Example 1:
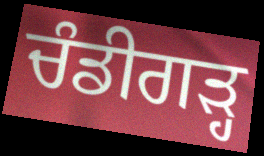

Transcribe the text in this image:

ਚੰਡੀਗੜ੍ਹ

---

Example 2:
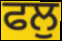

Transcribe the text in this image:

ਫਲੁ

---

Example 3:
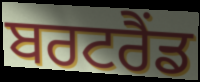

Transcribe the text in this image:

ਬਰਟਰੈਂਡ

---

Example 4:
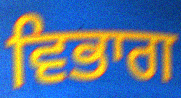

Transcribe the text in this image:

ਵਿਭਾਗ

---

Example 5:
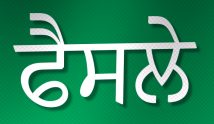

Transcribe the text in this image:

ਫੈਸਲੇ